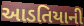
આડતિયાની